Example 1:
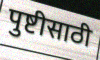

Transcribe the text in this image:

पुष्टीसाठी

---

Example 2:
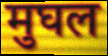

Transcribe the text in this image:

मुघल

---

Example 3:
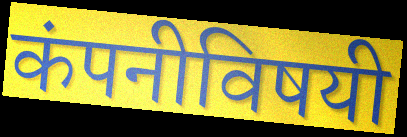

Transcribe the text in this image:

कंपनीविषयी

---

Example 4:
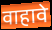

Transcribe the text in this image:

वाहावे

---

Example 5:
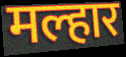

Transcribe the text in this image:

मल्हार